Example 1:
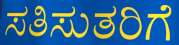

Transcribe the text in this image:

ಸತಿಸುತರಿಗೆ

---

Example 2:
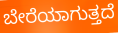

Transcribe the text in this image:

ಬೇರೆಯಾಗುತ್ತದೆ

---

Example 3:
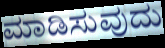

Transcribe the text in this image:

ಮಾಡಿಸುವುದು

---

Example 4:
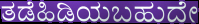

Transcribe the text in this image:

ತಡೆಹಿಡಿಯಬಹುದೇ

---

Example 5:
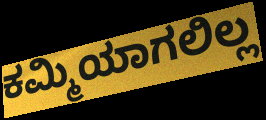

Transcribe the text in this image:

ಕಮ್ಮಿಯಾಗಲಿಲ್ಲ